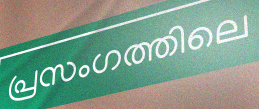
പ്രസംഗത്തിലെ